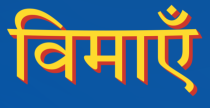
विमाएँ